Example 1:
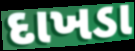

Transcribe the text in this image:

દાખડા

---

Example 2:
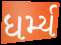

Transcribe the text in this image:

ધર્મ્ય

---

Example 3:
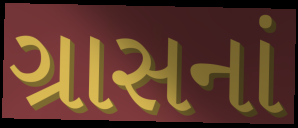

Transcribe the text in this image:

ગ્રાસનાં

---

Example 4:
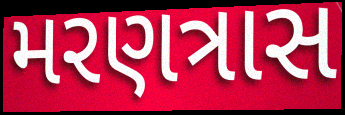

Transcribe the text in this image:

મરણત્રાસ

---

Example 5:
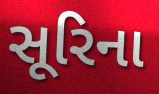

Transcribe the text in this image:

સૂરિના